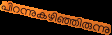
പിറന്നുകഴിഞ്ഞിരുന്നു